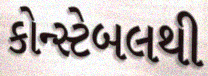
કોન્સ્ટેબલથી